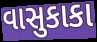
વાસુકાકા